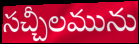
సచ్చీలమును